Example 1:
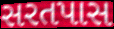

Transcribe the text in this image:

સરતપાસ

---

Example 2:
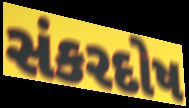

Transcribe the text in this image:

સંકરદોષ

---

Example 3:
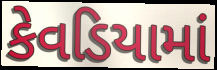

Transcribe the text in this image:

કેવડિયામાં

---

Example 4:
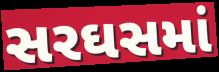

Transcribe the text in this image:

સરઘસમાં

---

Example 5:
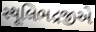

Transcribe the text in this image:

સ્થૂલિભદ્રજીએ